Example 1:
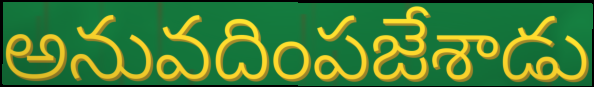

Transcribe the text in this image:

అనువదింపజేశాడు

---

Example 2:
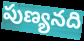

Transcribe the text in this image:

పుణ్యనది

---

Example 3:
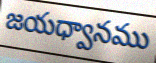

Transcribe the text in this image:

జయధ్వానము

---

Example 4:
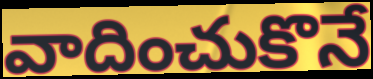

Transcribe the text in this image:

వాదించుకొనే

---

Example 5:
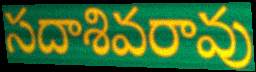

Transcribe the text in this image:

సదాశివరావు